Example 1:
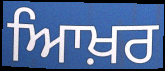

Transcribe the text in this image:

ਆਿਖ਼ਰ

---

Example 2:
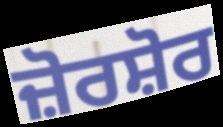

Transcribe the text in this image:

ਜ਼ੋਰਸ਼ੋਰ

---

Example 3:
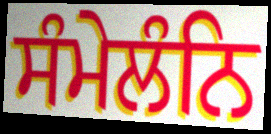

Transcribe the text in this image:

ਸੰਮੇਲੰਨਿ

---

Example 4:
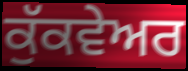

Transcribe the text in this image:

ਕੁੱਕਵੇਅਰ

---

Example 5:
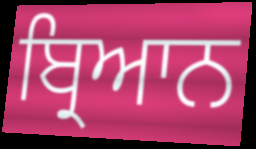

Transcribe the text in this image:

ਬ੍ਰਿਆਨ